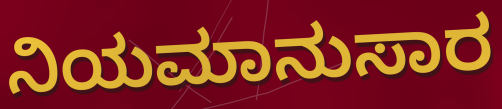
ನಿಯಮಾನುಸಾರ